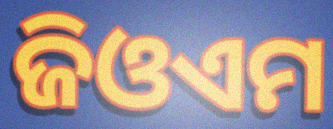
ଜିଓଏମ